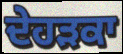
ਦੇਹੜਕਾ